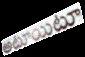
అటూయిటూ